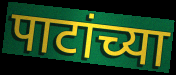
पाटांच्या